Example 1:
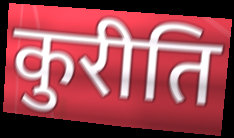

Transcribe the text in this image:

कुरीति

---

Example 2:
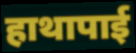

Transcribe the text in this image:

हाथापाई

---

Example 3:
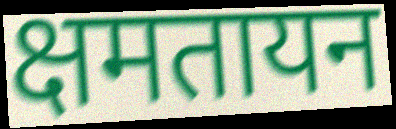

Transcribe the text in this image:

क्षमतायन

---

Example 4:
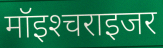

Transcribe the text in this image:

मॉइश्‍चराइजर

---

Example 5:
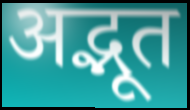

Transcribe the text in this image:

अद्भूत